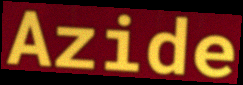
Azide